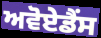
ਅਵੋਏਡੈਂਸ